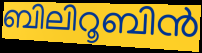
ബിലിറൂബിൻ